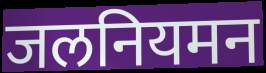
जलनियमन